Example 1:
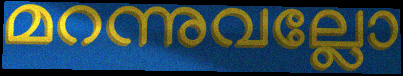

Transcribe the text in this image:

മറന്നുവല്ലോ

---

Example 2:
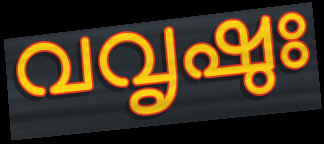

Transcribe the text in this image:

വവൃഷുഃ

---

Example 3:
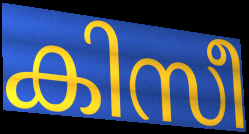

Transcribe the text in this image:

കിസീ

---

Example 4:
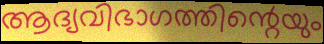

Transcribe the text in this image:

ആദ്യവിഭാഗത്തിന്റെയും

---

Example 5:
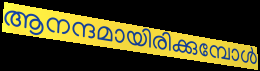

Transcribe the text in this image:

ആനന്ദമായിരിക്കുമ്പോൾ